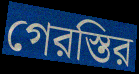
গেরস্তির